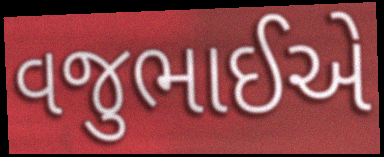
વજુભાઈએ